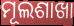
ମୂଲଶାଖା